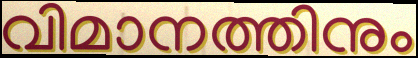
വിമാനത്തിനും